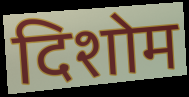
दिशोम